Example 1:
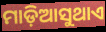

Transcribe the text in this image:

ମାଡ଼ିଆସୁଥାଏ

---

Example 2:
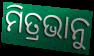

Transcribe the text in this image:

ମିତ୍ରଭାନୁ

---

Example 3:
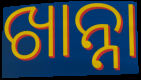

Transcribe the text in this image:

ଖାନ୍ନା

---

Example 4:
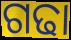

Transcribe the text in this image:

ଗଢା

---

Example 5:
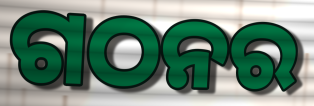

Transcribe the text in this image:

ଗଠନର